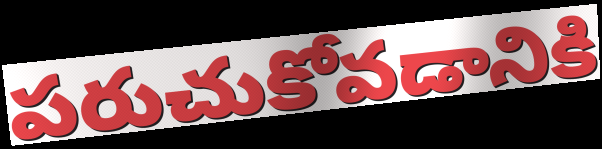
పరుచుకోవడానికి